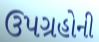
ઉપગ્રહોની